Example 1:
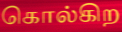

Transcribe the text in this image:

கொல்கிற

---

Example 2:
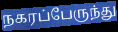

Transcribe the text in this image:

நகரப்பேருந்து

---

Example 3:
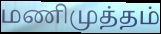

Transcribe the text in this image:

மணிமுத்தம்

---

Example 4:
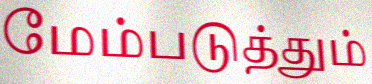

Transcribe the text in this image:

மேம்படுத்தும்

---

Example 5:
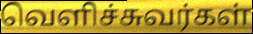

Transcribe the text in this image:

வெளிச்சுவர்கள்